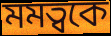
মমত্বকে